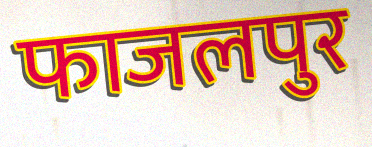
फाजलपुर